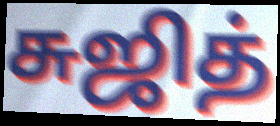
சுஜித்